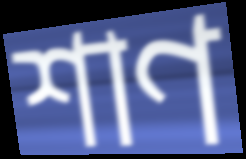
শাণ